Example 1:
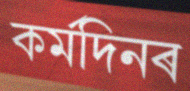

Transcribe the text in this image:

কৰ্মদিনৰ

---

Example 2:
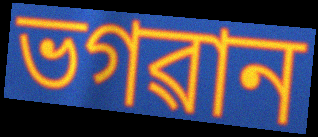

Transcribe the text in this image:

ভগৱান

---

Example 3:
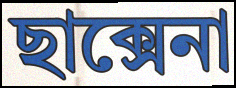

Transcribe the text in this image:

ছাক্সেনা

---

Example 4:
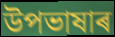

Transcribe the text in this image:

উপভাষাৰ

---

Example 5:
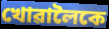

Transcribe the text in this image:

খোৱালৈকে